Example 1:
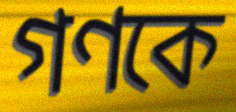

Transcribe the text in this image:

গণকে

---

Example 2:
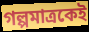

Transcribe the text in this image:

গল্পমাত্রকেই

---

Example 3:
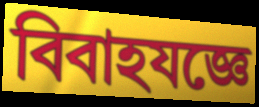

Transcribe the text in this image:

বিবাহযজ্ঞে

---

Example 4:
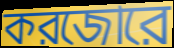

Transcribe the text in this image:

করজোরে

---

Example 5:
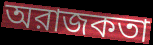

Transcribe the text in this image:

অরাজকতা